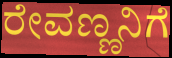
ರೇವಣ್ಣನಿಗೆ